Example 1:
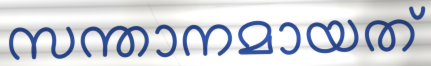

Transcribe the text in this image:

സന്താനമായത്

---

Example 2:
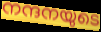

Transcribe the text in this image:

നന്ദനയുടെ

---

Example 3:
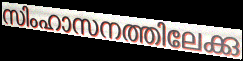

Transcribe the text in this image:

സിംഹാസനത്തിലേക്കു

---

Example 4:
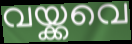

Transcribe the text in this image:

വയ്ക്കവെ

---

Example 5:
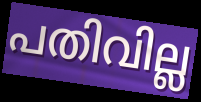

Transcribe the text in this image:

പതിവില്ല